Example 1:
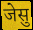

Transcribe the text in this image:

जेसु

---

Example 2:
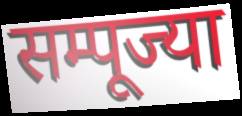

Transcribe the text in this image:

सम्पूज्या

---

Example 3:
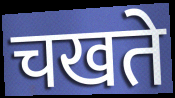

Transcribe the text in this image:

चखते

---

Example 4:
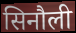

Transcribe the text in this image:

सिनौली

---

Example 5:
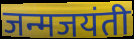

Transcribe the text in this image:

जन्मजयंती